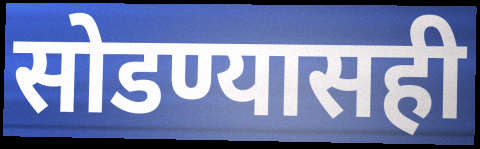
सोडण्यासही